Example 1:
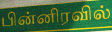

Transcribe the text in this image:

பின்னிரவில்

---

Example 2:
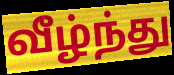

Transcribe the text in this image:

வீழ்ந்து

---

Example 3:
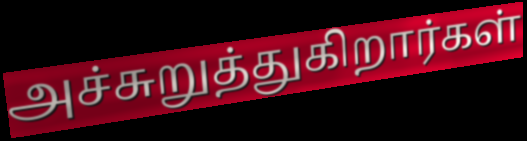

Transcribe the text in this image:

அச்சுறுத்துகிறார்கள்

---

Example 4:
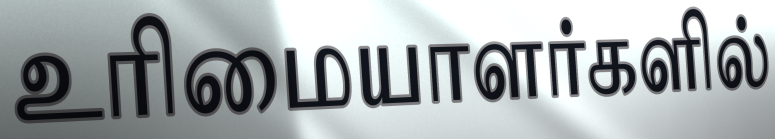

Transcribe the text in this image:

உரிமையாளர்களில்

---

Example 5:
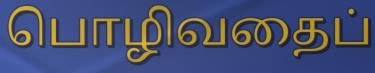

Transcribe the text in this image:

பொழிவதைப்